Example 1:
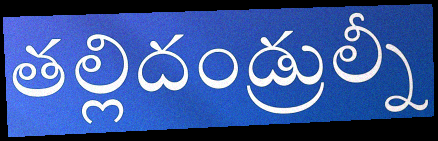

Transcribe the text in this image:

తల్లిదండ్రుల్నీ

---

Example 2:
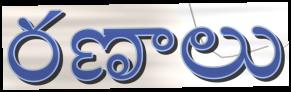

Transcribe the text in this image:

రణాలు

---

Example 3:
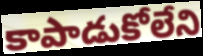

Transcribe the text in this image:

కాపాడుకోలేని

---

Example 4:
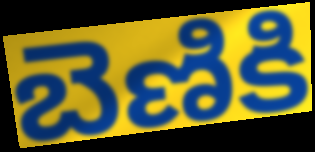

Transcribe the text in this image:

బెణికి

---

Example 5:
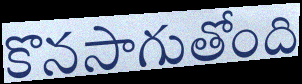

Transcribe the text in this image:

కొనసాగుతోంది